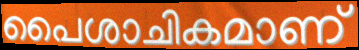
പൈശാചികമാണ്